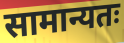
सामान्यतः